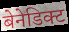
बेनेडिक्ट